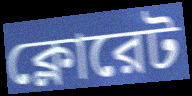
ক্লোরেট